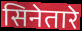
सिनेतारे